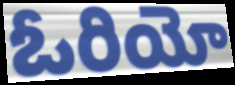
ఓరియో